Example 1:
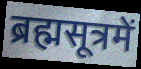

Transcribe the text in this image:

ब्रह्मसूत्रमें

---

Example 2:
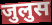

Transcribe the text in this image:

जुलुस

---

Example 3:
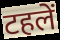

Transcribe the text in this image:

टहलें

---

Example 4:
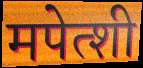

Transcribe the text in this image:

मपेत्शी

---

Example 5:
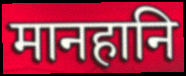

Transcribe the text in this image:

मानहानि